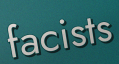
facists